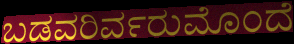
ಬಡವರಿರ್ವರುಮೊಂದೆ